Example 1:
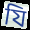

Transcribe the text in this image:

যি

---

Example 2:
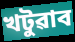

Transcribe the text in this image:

খটুৱাব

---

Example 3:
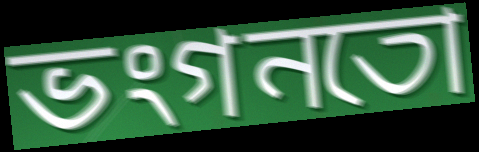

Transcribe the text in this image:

ভংগনতো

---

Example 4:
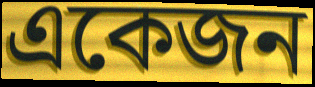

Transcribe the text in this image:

একেজন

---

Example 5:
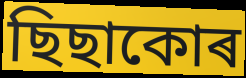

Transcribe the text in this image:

ছিছাকোৰ